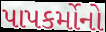
પાપકર્મોનો